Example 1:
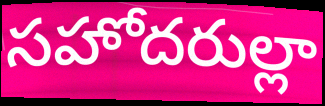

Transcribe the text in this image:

సహోదరుల్లా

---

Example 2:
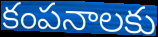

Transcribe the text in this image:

కంపనాలకు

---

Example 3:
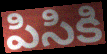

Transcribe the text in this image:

పిసికి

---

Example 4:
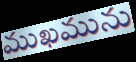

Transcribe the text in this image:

ముఖమును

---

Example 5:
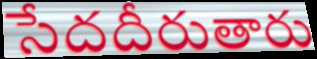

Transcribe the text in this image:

సేదదీరుతారు